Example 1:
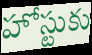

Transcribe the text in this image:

హోస్టుకు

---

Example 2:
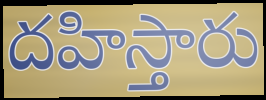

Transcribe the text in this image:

దహిస్తారు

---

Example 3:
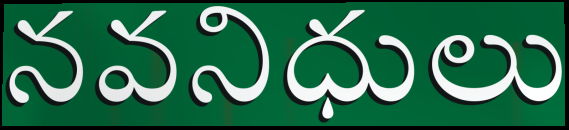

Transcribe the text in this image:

నవనిధులు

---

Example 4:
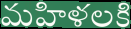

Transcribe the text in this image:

మహిళలకి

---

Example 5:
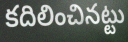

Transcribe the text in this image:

కదిలించినట్టు